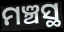
ମଞ୍ଚସ୍ଥ